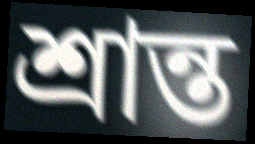
শ্রান্ত